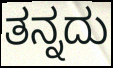
ತನ್ನದು